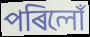
পৰিলোঁ